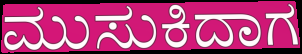
ಮುಸುಕಿದಾಗ